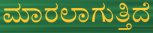
ಮಾರಲಾಗುತ್ತಿದೆ